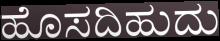
ಹೊಸದಿಹುದು